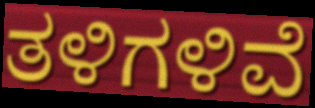
ತಳಿಗಳಿವೆ